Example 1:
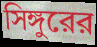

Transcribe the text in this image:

সিঙ্গুরের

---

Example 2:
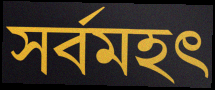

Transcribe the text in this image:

সর্বমহৎ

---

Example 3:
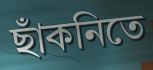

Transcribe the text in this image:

ছাঁকনিতে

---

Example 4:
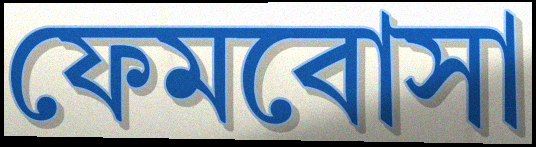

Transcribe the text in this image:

ফেমবোসা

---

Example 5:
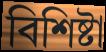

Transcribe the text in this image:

বিশিষ্টা